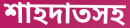
শাহদাতসহ